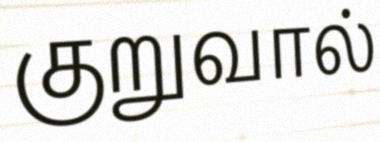
குறுவால்